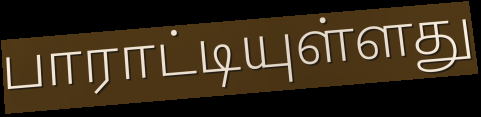
பாராட்டியுள்ளது